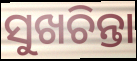
ସୁଖଚିନ୍ତା